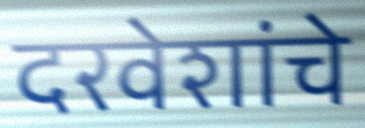
दरवेशांचे